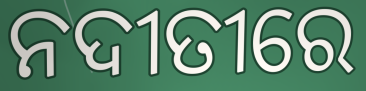
ନଦୀତୀରେ